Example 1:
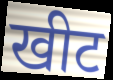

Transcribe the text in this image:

खीट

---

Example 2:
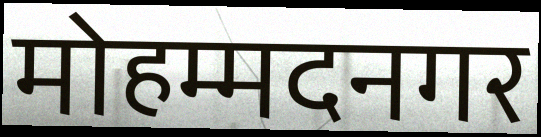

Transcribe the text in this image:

मोहम्मदनगर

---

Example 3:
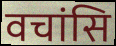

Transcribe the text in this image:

वचांसि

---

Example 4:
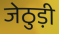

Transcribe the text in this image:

जेठुड़ी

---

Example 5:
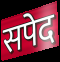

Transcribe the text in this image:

सपेद